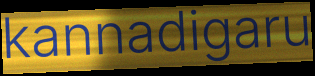
kannadigaru